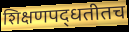
शिक्षणपद्धतीतच